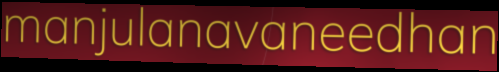
manjulanavaneedhan